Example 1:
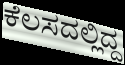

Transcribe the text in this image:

ಕೆಲಸದಲ್ಲಿದ್ದ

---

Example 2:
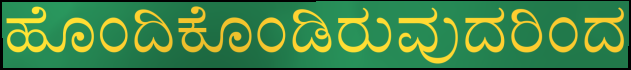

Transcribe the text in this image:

ಹೊಂದಿಕೊಂಡಿರುವುದರಿಂದ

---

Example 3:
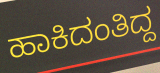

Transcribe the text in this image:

ಹಾಕಿದಂತಿದ್ದ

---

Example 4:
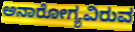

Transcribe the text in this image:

ಅನಾರೋಗ್ಯವಿರುವ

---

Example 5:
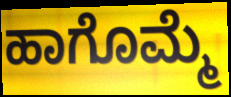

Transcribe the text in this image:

ಹಾಗೊಮ್ಮೆ